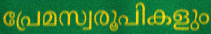
പ്രേമസ്വരൂപികളും